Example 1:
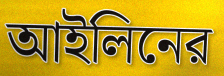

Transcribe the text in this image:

আইলিনের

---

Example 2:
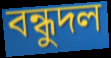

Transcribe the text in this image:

বন্ধুদল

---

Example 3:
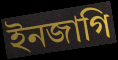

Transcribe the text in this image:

ইনজাগি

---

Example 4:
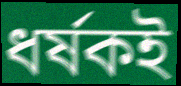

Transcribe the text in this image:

ধর্ষকই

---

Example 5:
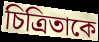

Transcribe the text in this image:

চিত্রিতাকে